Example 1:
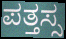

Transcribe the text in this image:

ಪತ್ತಸ್ಸ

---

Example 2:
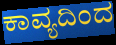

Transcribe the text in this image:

ಕಾವ್ಯದಿಂದ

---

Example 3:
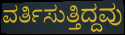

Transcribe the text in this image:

ವರ್ತಿಸುತ್ತಿದ್ದವು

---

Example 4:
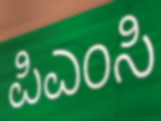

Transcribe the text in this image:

ಪಿಎಂಸಿ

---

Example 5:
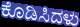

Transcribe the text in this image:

ಕೊಡಿಸಿದಳು